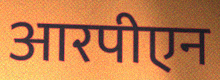
आरपीएन